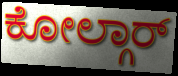
ಕೋಲ್ಗಾರ್